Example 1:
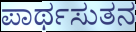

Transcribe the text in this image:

ಪಾರ್ಥಸುತನ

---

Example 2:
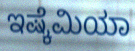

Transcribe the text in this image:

ಇಷ್ಕೆಮಿಯಾ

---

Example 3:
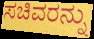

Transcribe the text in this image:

ಸಚಿವರನ್ನು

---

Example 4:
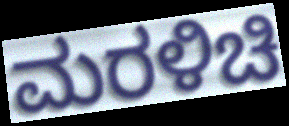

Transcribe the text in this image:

ಮರಳಿಚಿ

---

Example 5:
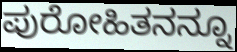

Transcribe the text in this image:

ಪುರೋಹಿತನನ್ನೂ